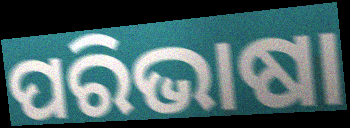
ପରିଭାଷା